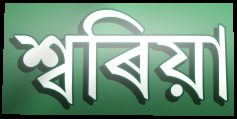
শ্বৰিয়া